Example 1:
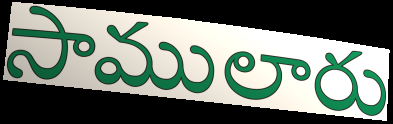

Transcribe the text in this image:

సాములారు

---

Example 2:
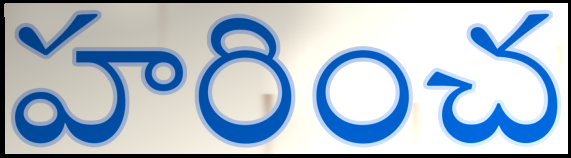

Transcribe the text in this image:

హరించ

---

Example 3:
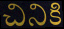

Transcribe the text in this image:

చినికి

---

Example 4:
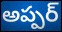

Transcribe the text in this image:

అప్పర్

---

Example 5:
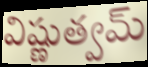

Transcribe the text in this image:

విష్ణుత్వమ్